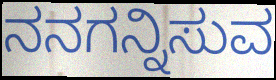
ನನಗನ್ನಿಸುವ